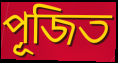
পূজিত